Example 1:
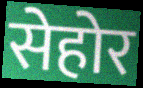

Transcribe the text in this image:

सेहोर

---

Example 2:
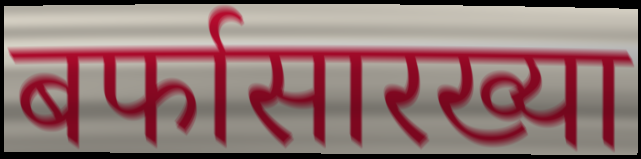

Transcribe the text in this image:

बर्फासारख्या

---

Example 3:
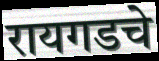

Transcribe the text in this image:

रायगडचे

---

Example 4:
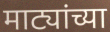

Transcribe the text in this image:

माट्यांच्या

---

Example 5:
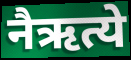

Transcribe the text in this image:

नैऋत्ये